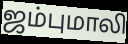
ஜம்புமாலி